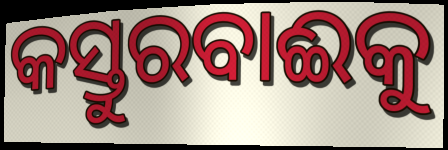
କସ୍ତୁରବାଈକୁ